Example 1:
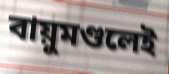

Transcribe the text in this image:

বায়ুমণ্ডলেই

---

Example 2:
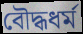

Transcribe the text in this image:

বৌদ্ধধর্ম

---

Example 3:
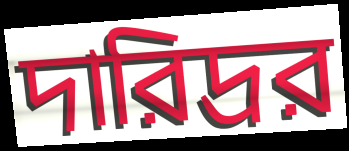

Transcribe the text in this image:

দারিদ্রর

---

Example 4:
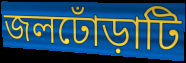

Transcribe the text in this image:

জলঢোঁড়াটি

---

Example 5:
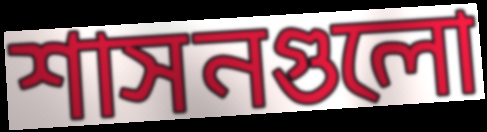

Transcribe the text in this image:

শাসনগুলো